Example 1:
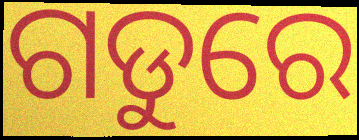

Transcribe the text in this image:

ଗଡୁରେ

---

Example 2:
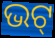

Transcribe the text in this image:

ଭଟ୍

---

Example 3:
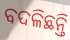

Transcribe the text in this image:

ବଦଳିଛନ୍ତି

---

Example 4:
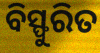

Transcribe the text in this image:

ବିସ୍ଫୁରିତ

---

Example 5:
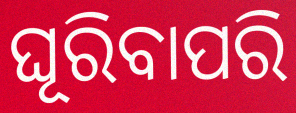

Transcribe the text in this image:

ଘୂରିବାପରି